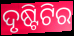
ଦୃଷ୍ଟିଟିର